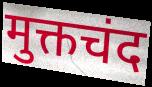
मुक्तचंद